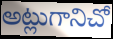
అట్లుగానిచో